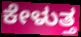
ಕೇಳುತ್ತ